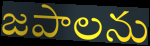
జపాలను